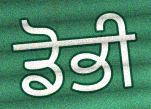
ਡੋਭੀ